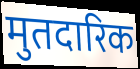
मुतदारिक